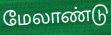
மேலாண்டு